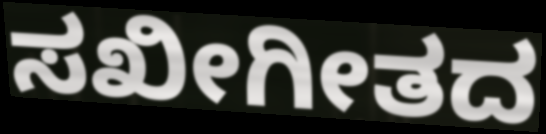
ಸಖೀಗೀತದ